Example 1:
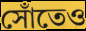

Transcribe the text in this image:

সোঁতেও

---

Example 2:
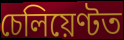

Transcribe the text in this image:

চেলিয়েণ্টত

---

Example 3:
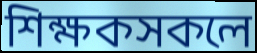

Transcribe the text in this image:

শিক্ষকসকলে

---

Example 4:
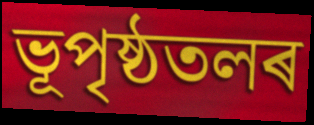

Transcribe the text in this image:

ভূপৃষ্ঠতলৰ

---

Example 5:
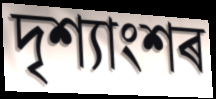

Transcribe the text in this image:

দৃশ্যাংশৰ